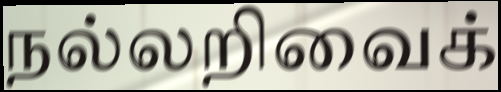
நல்லறிவைக்